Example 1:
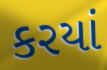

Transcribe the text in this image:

કરયાં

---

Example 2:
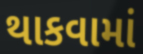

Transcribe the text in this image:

થાકવામાં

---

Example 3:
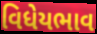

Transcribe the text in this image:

વિધેયભાવ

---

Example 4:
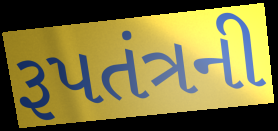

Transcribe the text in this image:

રૂપતંત્રની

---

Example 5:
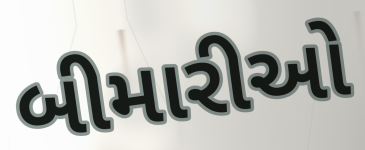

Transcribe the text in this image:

બીમારીઓ